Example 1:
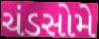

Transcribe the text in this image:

ચંડસોમે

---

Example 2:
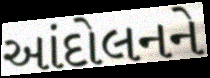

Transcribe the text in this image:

આંદોલનને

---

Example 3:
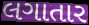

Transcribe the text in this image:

લગાતાર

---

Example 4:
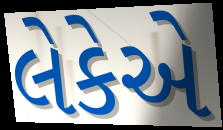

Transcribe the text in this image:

લેકેએ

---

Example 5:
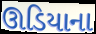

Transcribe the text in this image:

ઊડિયાના